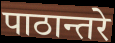
पाठान्तरे